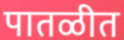
पातळीत